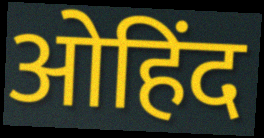
ओहिंद